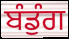
ਬੰਡੁੰਗ